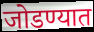
जोडण्यात